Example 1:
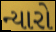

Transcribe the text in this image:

ન્યારો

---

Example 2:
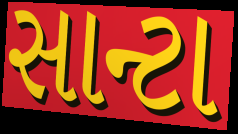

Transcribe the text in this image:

સાન્ટા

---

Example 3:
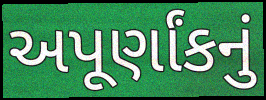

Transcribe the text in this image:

અપૂર્ણાંકનું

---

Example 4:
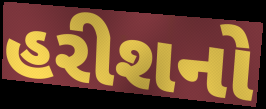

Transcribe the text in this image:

હરીશનો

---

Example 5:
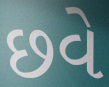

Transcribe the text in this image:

છવે